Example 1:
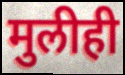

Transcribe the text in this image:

मुलीही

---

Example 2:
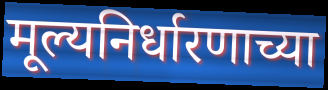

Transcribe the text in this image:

मूल्यनिर्धारणाच्या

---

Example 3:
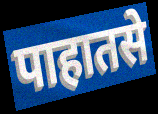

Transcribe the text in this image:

पाहातसे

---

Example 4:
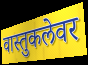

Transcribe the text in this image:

वास्तुकलेवर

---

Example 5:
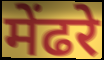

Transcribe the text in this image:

मेंढरे